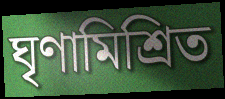
ঘৃণামিশ্রিত